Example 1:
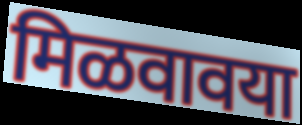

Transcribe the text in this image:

मिळवावया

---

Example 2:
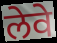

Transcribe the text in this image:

लेवे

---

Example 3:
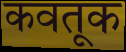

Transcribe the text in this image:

कवतूक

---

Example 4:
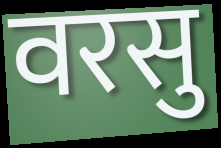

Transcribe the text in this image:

वरसु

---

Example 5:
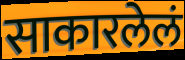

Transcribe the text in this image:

साकारलेलं